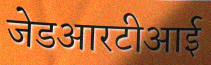
जेडआरटीआई